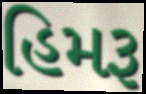
હિમરૂ